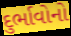
દુર્ભાવોનો